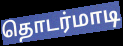
தொடர்மாடி